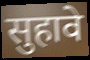
सुहावे